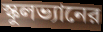
স্কুলভ্যানের